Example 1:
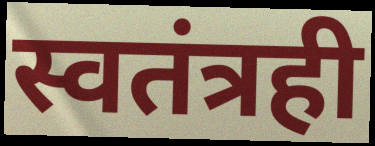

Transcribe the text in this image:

स्वतंत्रही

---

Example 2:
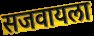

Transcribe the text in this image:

सजवायला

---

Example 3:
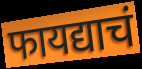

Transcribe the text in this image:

फायद्याचं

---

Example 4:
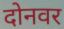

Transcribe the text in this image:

दोनवर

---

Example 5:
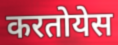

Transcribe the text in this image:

करतोयेस